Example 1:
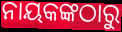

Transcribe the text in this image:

ନାୟକଙ୍କଠାରୁ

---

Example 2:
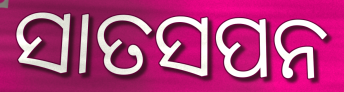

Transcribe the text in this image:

ସାତସପନ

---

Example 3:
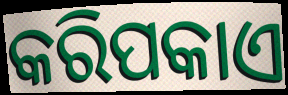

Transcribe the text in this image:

କରିପକାଏ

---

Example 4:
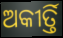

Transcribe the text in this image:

ଅକୀର୍ତ୍ତି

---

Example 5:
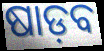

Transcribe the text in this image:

ଷାଡ଼ବ